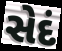
સેદં